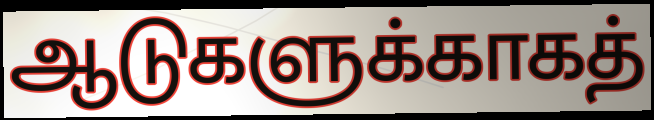
ஆடுகளுக்காகத்